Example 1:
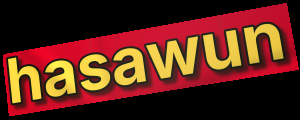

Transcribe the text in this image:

hasawun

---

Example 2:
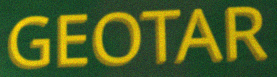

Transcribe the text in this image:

GEOTAR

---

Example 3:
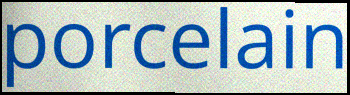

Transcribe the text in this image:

porcelain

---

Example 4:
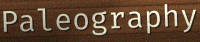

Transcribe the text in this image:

Paleography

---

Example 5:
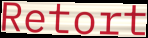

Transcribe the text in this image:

Retort